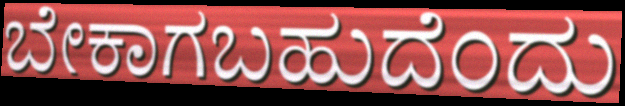
ಬೇಕಾಗಬಹುದೆಂದು